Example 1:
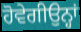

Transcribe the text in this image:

ਹੋਵੇਗੀਉਨ੍ਹਾਂ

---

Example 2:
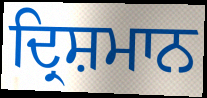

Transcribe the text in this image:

ਦ੍ਰਿਸ਼ਮਾਨ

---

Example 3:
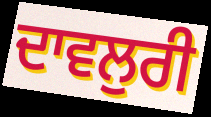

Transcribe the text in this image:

ਦਾਵਲੁਰੀ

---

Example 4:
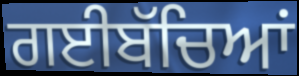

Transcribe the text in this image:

ਗਈਬੱਚਿਆਂ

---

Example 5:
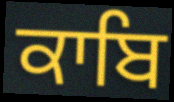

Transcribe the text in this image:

ਕਾਬਿ